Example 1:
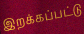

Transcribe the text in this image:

இறக்கப்பட்டு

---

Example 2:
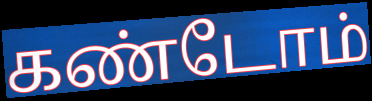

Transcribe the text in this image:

கண்டோம்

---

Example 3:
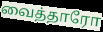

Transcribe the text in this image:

வைத்தாரோ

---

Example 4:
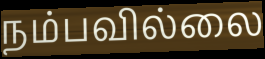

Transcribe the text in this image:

நம்பவில்லை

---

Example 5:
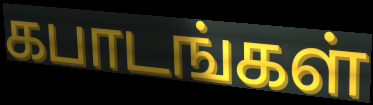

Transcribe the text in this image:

கபாடங்கள்